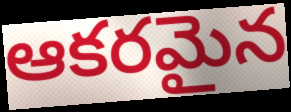
ఆకరమైన